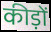
कीड़ों